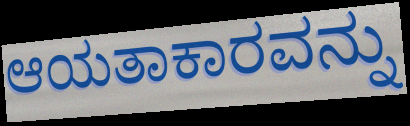
ಆಯತಾಕಾರವನ್ನು